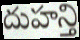
దుహన్తి